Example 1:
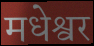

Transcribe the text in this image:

मधेश्वर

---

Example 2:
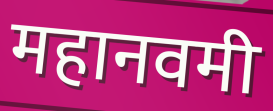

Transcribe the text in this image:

महानवमी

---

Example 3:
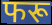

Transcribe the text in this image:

फरू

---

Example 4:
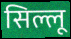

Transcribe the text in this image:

सिल्लू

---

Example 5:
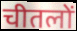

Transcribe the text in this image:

चीतलों